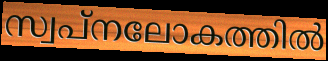
സ്വപ്നലോകത്തിൽ